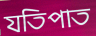
যতিপাত